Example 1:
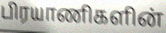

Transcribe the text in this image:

பிரயாணிகளின்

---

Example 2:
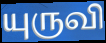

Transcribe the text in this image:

யுருவி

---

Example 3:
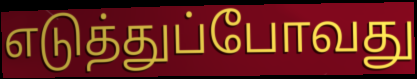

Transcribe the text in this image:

எடுத்துப்போவது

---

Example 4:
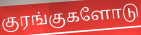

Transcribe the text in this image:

குரங்குகளோடு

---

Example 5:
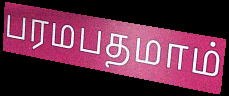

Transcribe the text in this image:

பரமபதமாம்